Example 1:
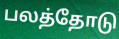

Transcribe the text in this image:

பலத்தோடு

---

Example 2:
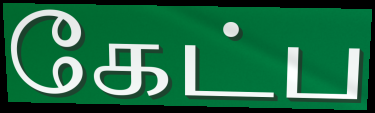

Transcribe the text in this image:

கேட்ப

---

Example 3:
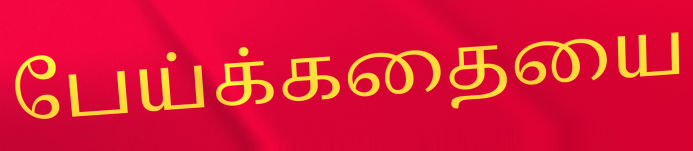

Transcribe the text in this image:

பேய்க்கதையை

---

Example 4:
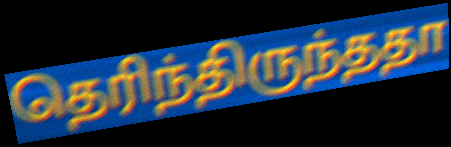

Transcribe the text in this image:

தெரிந்திருந்ததா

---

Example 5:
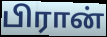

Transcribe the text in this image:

பிரான்